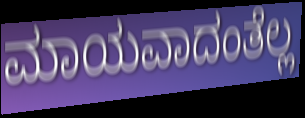
ಮಾಯವಾದಂತೆಲ್ಲ